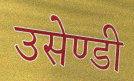
उसेण्डी